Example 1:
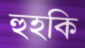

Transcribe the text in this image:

হুহকি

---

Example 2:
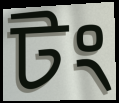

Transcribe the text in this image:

টং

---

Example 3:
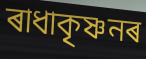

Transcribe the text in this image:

ৰাধাকৃষ্ণনৰ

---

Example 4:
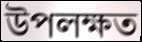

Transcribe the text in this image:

উপলক্ষত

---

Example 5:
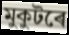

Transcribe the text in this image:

মুকুটৰে